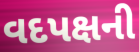
વદપક્ષની